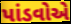
પાંડવોએ